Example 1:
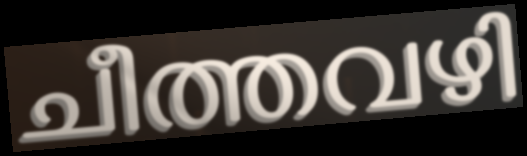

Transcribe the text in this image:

ചീത്തവഴി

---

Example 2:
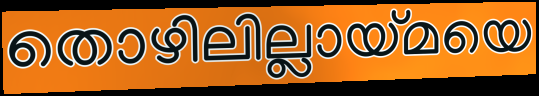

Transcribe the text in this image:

തൊഴിലില്ലായ്മയെ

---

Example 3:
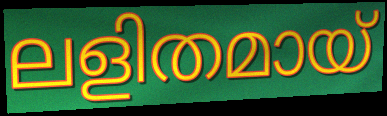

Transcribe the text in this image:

ലളിതമായ്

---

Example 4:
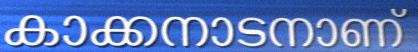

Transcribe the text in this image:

കാക്കനാടനാണ്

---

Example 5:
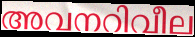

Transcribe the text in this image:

അവനറിവീല